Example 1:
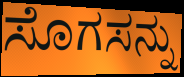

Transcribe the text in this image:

ಸೊಗಸನ್ನು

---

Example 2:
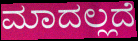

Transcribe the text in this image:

ಮಾದಲ್ಲದೆ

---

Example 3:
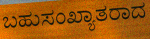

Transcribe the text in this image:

ಬಹುಸಂಖ್ಯಾತರಾದ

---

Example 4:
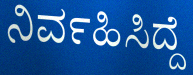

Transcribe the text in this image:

ನಿರ್ವಹಿಸಿದ್ದೆ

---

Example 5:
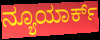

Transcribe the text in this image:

ನ್ಯೂಯಾರ್ಕ್